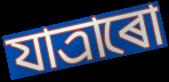
যাত্ৰাৰো